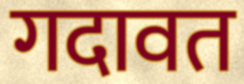
गदावत